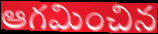
ఆగమించిన